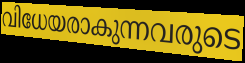
വിധേയരാകുന്നവരുടെ